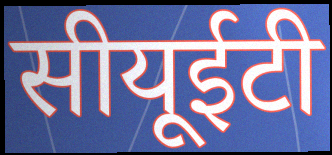
सीयूईटी